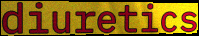
diuretics